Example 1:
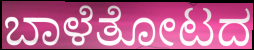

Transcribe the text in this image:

ಬಾಳೆತೋಟದ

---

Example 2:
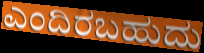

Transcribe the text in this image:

ಎಂದಿರಬಹುದು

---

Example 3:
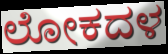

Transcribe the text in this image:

ಲೋಕದಳ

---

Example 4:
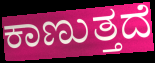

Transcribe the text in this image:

ಕಾಣುತ್ತದೆ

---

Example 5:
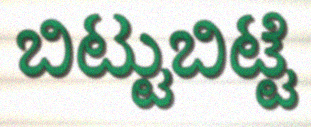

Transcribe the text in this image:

ಬಿಟ್ಟುಬಿಟ್ಟೆ